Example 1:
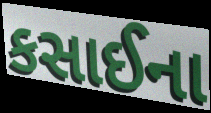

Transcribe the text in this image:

કસાઈના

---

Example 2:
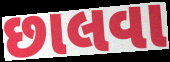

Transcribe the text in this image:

છાલવા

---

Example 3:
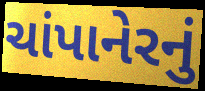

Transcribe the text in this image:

ચાંપાનેરનું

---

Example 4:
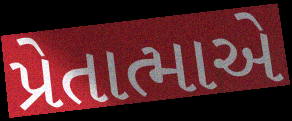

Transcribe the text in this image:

પ્રેતાત્માએ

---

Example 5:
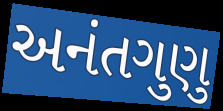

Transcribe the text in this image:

અનંતગુણુ